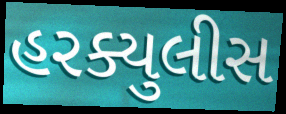
હરક્યુલીસ